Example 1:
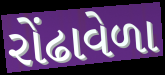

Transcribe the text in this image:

રોંઢાવેળા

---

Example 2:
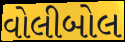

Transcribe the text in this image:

વોલીબોલ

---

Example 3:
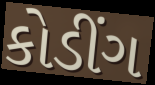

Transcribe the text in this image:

કોડીંગ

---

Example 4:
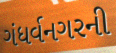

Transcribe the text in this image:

ગંધર્વનગરની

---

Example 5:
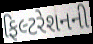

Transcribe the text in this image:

ફિલ્ટરેશનની